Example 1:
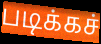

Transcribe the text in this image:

படிக்கச்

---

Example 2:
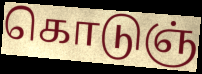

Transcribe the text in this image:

கொடுஞ்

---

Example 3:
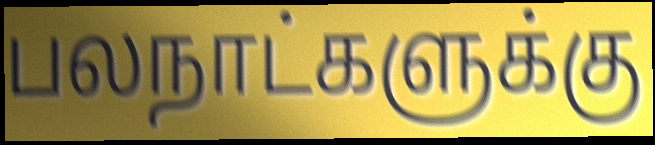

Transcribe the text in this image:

பலநாட்களுக்கு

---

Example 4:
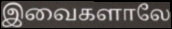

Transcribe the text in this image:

இவைகளாலே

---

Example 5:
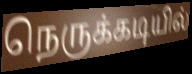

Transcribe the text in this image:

நெருக்கடியில்